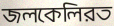
জলকেলিরত